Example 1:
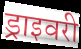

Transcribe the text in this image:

ड्राइवरी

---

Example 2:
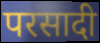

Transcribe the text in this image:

परसादी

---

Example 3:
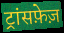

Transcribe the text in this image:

ट्रांसफ़ेज़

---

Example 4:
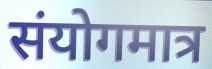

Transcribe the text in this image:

संयोगमात्र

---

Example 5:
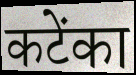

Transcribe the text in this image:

कटेंका